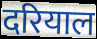
दरियाल